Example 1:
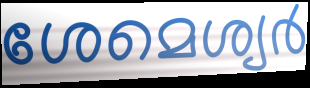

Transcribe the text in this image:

ശേമെശ്യർ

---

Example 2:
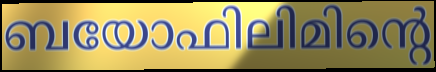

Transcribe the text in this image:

ബയോഫിലിമിന്റെ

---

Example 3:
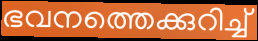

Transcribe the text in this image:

ഭവനത്തെക്കുറിച്ച്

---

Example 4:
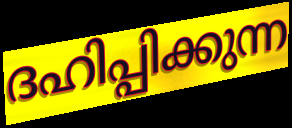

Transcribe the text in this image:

ദഹിപ്പിക്കുന്ന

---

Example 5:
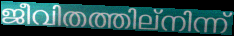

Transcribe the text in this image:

ജീവിതത്തില്നിന്ന്